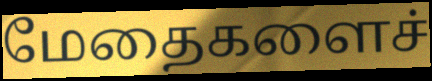
மேதைகளைச்